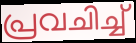
പ്രവചിച്ച്